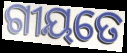
ଗୀୟତେ